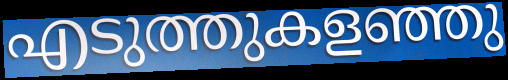
എടുത്തുകളഞ്ഞു